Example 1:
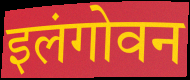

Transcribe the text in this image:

इलंगोवन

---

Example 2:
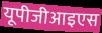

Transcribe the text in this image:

यूपीजीआइएस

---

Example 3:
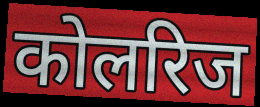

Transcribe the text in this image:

कोलरिज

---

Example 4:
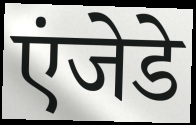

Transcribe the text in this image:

एंजेडे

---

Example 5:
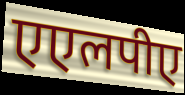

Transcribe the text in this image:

एएलपीए